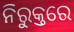
ନିରୁକ୍ତରେ